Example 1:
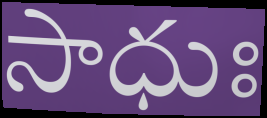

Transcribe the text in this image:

సాధుః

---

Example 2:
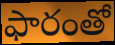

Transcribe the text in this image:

ఫారంతో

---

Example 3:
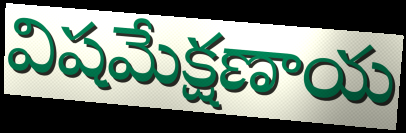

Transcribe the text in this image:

విషమేక్షణాయ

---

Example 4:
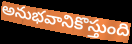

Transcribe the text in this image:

అనుభవానికొస్తుంది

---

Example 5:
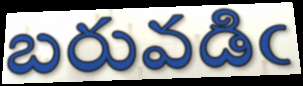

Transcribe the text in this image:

బరువడిఁ